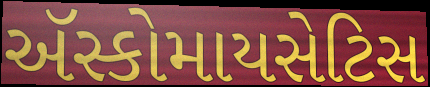
ઍસ્કોમાયસેટિસ